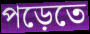
পড়েতে